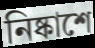
নিষ্কাশে